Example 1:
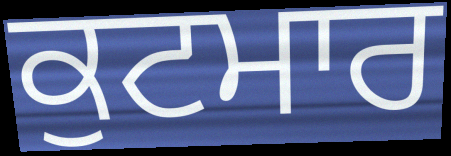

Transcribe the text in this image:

ਕੁਟਮਾਰ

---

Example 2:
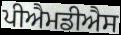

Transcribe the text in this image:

ਪੀਐਮਡੀਐਸ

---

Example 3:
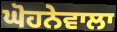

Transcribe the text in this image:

ਘੋਹਨੇਵਾਲਾ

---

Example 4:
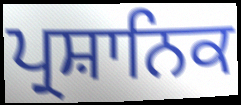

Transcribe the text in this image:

ਪ੍ਰਸ਼ਾਨਿਕ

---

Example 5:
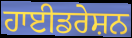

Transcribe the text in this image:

ਹਾਈਡਰੇਸ਼ਨ